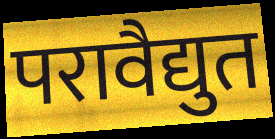
परावैद्युत